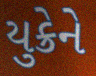
યુક્રેને